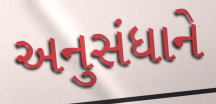
અનુસંધાને